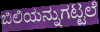
ಬಿಲಿಯನ್ನುಗಟ್ಟಲೆ